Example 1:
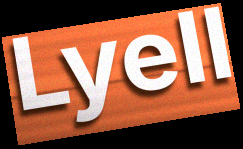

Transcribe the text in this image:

Lyell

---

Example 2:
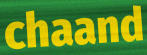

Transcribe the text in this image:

chaand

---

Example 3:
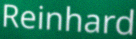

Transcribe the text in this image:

Reinhard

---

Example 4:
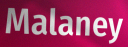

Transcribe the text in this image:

Malaney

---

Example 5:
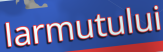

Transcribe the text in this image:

Iarmutului